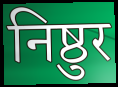
निष्ठुर